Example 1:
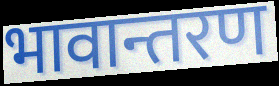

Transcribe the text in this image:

भावान्तरण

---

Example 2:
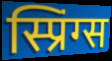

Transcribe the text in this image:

स्प्रिंग्स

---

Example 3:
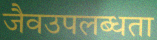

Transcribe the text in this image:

जैवउपलब्धता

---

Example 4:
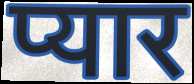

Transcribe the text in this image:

प्यार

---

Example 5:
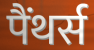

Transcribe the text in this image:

पैंथर्स